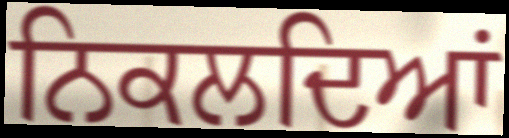
ਨਿਕਲਦਿਆਂ